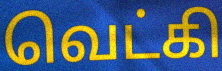
வெட்கி